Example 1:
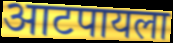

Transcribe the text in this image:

आटपायला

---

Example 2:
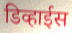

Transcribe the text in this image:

डिव्हाईस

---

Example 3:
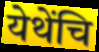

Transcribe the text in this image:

येथेंचि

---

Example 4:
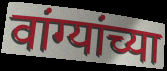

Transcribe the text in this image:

वांग्यांच्या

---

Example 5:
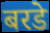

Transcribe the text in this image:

बरडे